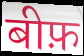
बीफ़